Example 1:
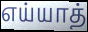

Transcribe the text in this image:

எய்யாத்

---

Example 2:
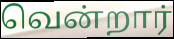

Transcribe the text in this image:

வென்றார்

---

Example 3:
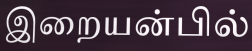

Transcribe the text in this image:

இறையன்பில்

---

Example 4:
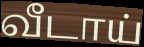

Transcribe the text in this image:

வீடாய்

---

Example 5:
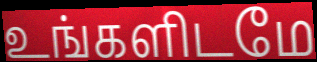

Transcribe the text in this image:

உங்களிடமே